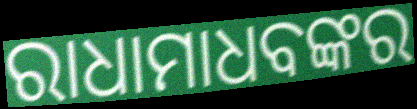
ରାଧାମାଧବଙ୍କର